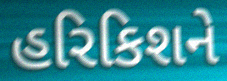
હરિકિશને